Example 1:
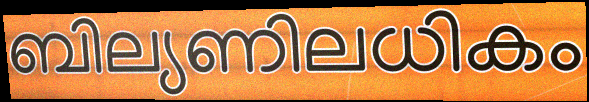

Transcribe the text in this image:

ബില്യണിലധികം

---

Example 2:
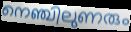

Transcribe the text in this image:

നെഞ്ചിലുണരും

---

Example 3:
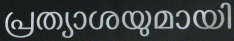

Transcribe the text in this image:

പ്രത്യാശയുമായി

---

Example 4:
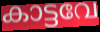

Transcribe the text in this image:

കാട്ടവേ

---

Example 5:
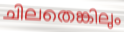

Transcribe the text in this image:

ചിലതെങ്കിലും